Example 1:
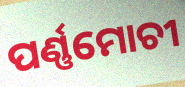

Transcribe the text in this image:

ପର୍ଣ୍ଣମୋଚୀ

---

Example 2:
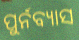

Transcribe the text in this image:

ପୁର୍ନବ୍ୟାସ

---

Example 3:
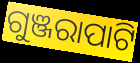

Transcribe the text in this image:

ଗୁଞ୍ଜରାପାଟି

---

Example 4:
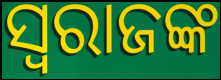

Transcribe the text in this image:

ସ୍ୱରାଜଙ୍କ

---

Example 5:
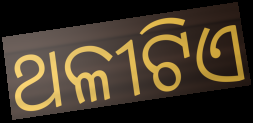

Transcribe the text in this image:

ଥଳୀଟିଏ